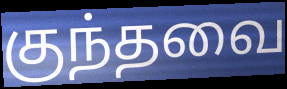
குந்தவை